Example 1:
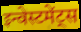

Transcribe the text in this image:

इन्वेस्टमेंट्स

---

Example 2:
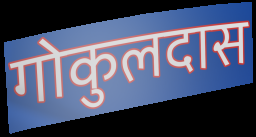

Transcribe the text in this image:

गोकुलदास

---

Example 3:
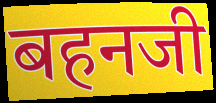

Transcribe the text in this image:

बहनजी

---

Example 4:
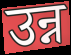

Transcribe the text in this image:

उन्न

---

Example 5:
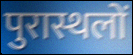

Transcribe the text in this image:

पुरास्थलों